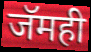
जॅमही